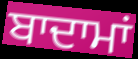
ਬਾਦਾਮਾਂ